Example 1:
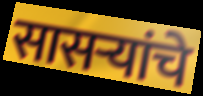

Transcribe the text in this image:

सासर्‍यांचे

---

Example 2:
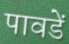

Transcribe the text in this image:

पावडें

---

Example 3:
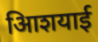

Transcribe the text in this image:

आिशयाई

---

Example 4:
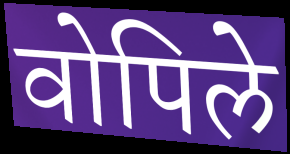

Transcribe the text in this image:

वोपिले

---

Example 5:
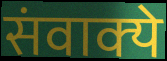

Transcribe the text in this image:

संवाक्ये